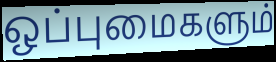
ஒப்புமைகளும்